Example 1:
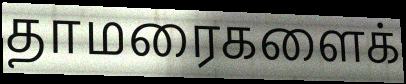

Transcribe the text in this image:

தாமரைகளைக்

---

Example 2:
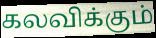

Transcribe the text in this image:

கலவிக்கும்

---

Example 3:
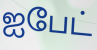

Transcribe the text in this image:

ஐபேட்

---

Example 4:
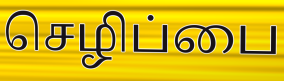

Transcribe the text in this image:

செழிப்பை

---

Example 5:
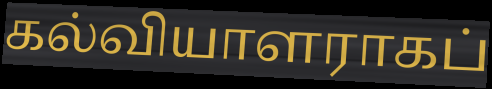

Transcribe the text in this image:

கல்வியாளராகப்